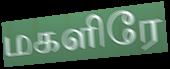
மகளிரே